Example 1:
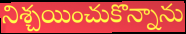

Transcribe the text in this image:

నిశ్చయించుకొన్నాను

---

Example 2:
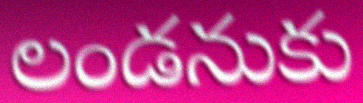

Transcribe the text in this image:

లండనుకు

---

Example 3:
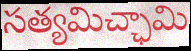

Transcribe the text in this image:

సత్యమిచ్ఛామి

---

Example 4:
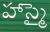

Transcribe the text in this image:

హాస్మై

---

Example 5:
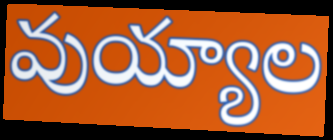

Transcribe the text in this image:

వుయ్యాల